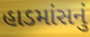
હાડમાંસનું